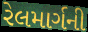
રેલમાર્ગની